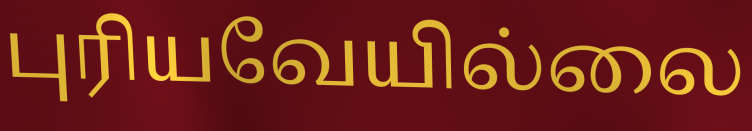
புரியவேயில்லை